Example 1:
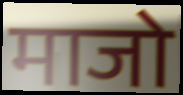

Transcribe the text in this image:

माजो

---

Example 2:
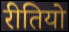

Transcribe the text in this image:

रीतियो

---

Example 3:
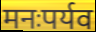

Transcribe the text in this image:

मनःपर्यव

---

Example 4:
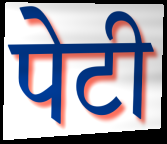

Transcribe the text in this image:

पेटी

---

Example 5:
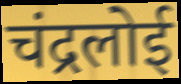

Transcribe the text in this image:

चंद्रलोई